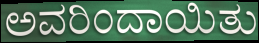
ಅವರಿಂದಾಯಿತು